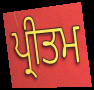
ਪ੍ਰੀਤਮ